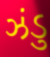
ઝંડુ